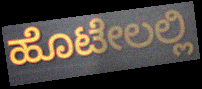
ಹೊಟೇಲಲ್ಲಿ